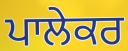
ਪਾਲੇਕਰ